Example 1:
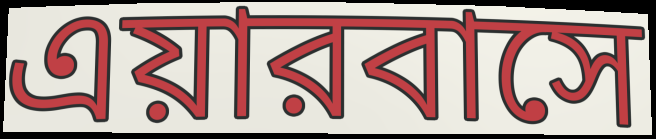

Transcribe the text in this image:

এয়ারবাসে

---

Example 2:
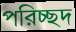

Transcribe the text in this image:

পরিচ্ছদ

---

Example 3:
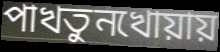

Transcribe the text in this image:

পাখতুনখোয়ায়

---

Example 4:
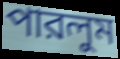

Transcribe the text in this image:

পারলুম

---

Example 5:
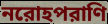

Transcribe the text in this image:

নরোহপরাণি